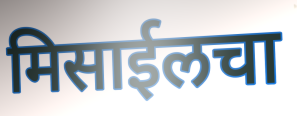
मिसाईलचा